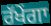
ਰੱਖੇਂਗਾ